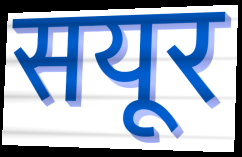
सयूर